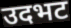
उदभट